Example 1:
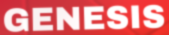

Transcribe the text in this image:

GENESIS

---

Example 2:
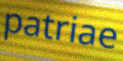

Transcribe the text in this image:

patriae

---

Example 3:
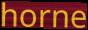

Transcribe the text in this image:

horne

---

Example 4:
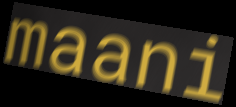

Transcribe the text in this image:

maani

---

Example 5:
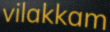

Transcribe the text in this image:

vilakkam